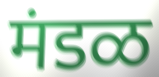
मंडळ